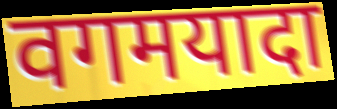
वगमयादा